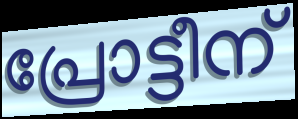
പ്രോട്ടീന്